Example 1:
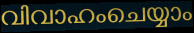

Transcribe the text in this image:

വിവാഹംചെയ്യാം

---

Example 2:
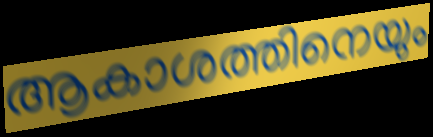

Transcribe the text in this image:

ആകാശത്തിനെയും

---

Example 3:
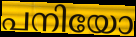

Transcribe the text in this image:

പനിയോ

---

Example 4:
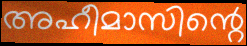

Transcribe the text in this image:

അഹീമാസിന്റെ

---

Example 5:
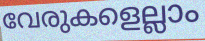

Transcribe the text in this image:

വേരുകളെല്ലാം